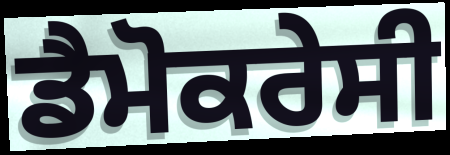
ਡੈਮੋਕਰੇਸੀ